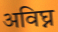
अविघ्न